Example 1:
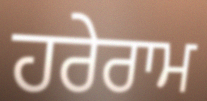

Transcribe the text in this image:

ਹਰੇਰਾਮ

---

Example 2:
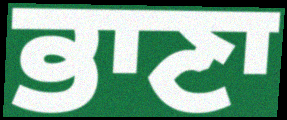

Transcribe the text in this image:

ਭਾਣਾ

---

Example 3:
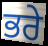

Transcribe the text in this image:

ਭਰੇ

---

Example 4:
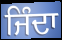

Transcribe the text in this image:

ਜਿੰਦਾ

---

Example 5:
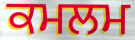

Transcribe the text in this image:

ਕਮਲਮ